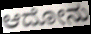
ಆದೋನು